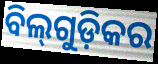
ବିଲ୍‌ଗୁଡ଼ିକର